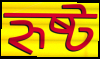
হৃষ্ট